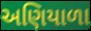
અણિયાળા